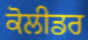
ਕੋਲੀਡਰ